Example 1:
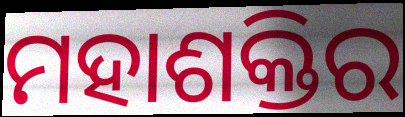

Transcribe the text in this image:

ମହାଶକ୍ତିର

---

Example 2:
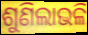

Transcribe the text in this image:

ଶୁଣିଲାଭଳି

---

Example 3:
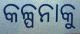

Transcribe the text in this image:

କଳ୍ପନାକୁ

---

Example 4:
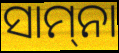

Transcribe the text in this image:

ସାମ୍‍ନା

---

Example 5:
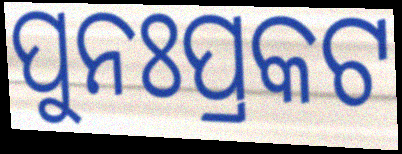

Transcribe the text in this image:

ପୁନଃପ୍ରକଟ